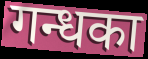
गन्धका